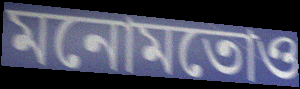
মনোমতোও